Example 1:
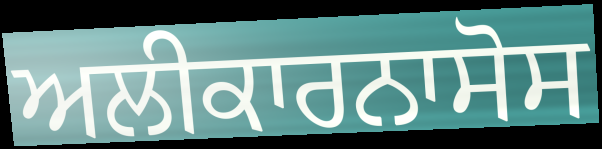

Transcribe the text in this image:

ਅਲੀਕਾਰਨਾਸੋਸ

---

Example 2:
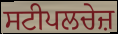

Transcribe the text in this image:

ਸਟੀਪਲਚੇਜ਼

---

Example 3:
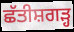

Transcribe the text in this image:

ਛੱਤੀਸ਼ਗੜ੍ਹ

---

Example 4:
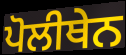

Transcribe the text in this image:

ਪੋਲੀਥੇਨ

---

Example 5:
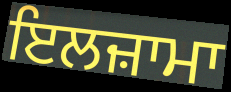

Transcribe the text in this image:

ਇਲਜ਼ਾਮਾ